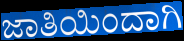
ಜಾತಿಯಿಂದಾಗಿ